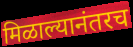
मिळाल्यानंतरच